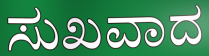
ಸುಖವಾದ